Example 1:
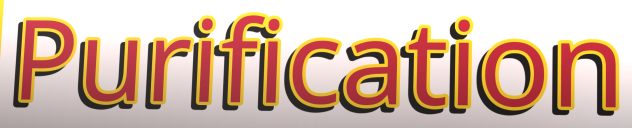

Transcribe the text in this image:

Purification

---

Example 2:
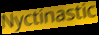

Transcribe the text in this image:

Nyctinastic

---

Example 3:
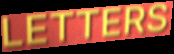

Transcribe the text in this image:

LETTERS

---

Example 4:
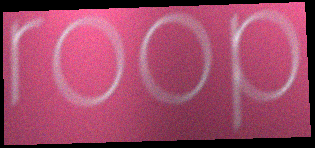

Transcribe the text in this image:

roop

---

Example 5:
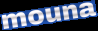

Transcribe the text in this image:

mouna